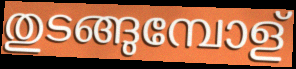
തുടങ്ങുമ്പോള്